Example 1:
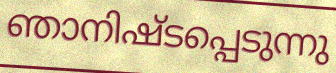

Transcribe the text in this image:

ഞാനിഷ്ടപ്പെടുന്നു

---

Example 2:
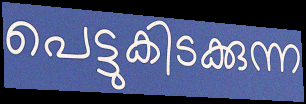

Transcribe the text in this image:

പെട്ടുകിടക്കുന്ന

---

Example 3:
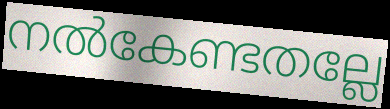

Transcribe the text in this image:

നൽകേണ്ടതല്ലേ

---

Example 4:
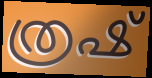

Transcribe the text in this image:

ത്രഷ്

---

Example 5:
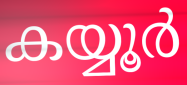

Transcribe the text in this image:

കയ്യൂർ